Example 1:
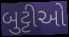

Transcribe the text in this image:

બુટ્ટીઓ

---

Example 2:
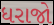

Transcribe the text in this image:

ધરાજો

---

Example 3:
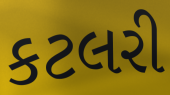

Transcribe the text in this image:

કટલરી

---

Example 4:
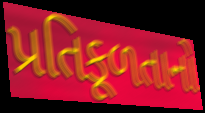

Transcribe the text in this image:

પ્રતિકૂળતાનો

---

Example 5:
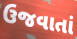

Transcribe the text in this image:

ઉજવાતાં